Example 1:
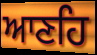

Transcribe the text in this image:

ਆਣਹਿ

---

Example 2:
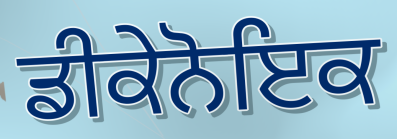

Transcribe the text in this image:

ਡੀਕੇਨੋਇਕ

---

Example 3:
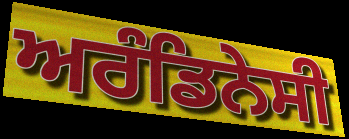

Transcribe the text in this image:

ਅਰੰਡਿਨੇਸੀ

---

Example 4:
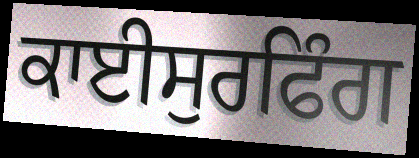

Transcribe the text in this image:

ਕਾਈਸੁਰਫਿੰਗ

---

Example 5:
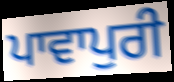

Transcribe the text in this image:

ਪਾਵਾਪੁਰੀ